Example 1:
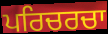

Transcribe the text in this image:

ਪਰਿਚਰਚਾ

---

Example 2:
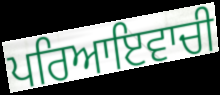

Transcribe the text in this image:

ਪਰਿਆਇਵਾਚੀ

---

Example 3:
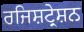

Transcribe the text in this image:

ਰਜਿਸ਼ਟ੍ਰੇਸ਼ਨ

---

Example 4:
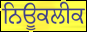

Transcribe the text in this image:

ਨਿਊਕਲੀਕ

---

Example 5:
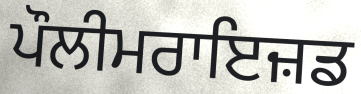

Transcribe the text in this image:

ਪੌਲੀਮਰਾਇਜ਼ਡ